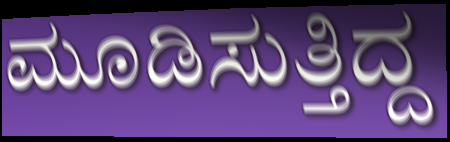
ಮೂಡಿಸುತ್ತಿದ್ದ